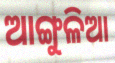
ଆଙ୍ଗୁଳିଆ